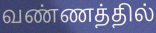
வண்ணத்தில்